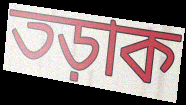
তড়াক